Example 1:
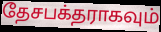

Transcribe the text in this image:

தேசபக்தராகவும்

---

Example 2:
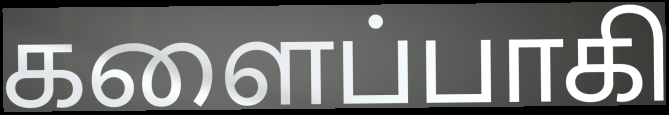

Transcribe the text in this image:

களைப்பாகி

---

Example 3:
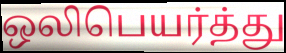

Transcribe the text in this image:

ஒலிபெயர்த்து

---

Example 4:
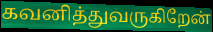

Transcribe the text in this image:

கவனித்துவருகிறேன்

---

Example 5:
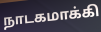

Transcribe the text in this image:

நாடகமாக்கி